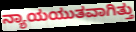
ನ್ಯಾಯಯುತವಾಗಿತ್ತು